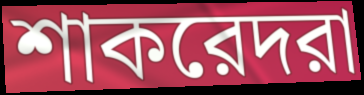
শাকরেদরা